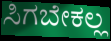
ಸಿಗಬೇಕಲ್ಲ